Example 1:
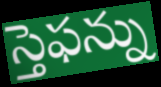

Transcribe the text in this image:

స్తెఫన్ను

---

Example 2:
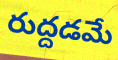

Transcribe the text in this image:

రుద్దడమే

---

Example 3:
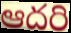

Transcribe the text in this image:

ఆదరి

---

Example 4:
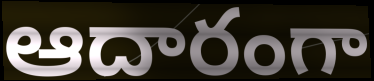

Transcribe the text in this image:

ఆదారంగా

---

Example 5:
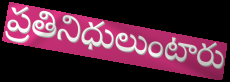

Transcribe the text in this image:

ప్రతినిధులుంటారు